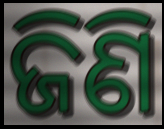
ଜିଣି